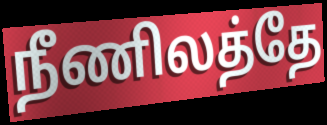
நீணிலத்தே